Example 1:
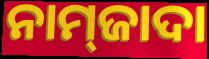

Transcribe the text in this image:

ନାମ୍‌ଜାଦା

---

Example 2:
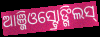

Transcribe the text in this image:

ଆଞ୍ଜିଓସ୍ଟ୍ରୋଙ୍ଗିଲସ୍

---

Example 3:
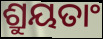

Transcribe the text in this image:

ଶ୍ରୁୟତାଂ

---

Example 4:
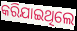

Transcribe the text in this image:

କରିଯାଇଥିଲେ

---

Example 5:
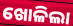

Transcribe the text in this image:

ଖୋଳିଲା